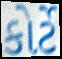
કોર્ટે